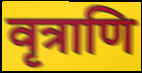
वृत्राणि